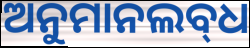
ଅନୁମାନଲବ୍‌ଧ